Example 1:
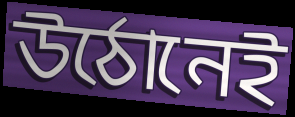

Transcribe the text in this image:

উঠোনেই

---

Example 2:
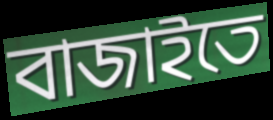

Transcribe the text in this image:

বাজাইতে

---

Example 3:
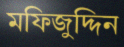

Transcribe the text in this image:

মফিজুদ্দিন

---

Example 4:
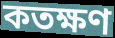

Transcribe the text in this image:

কতক্ষণ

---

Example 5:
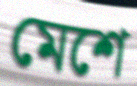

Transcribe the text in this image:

মেশে